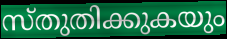
സ്തുതിക്കുകയും